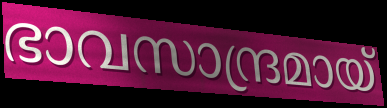
ഭാവസാന്ദ്രമായ്